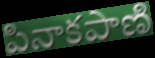
పినాకపాణి